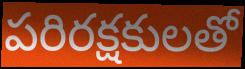
పరిరక్షకులతో